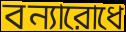
বন্যারোধে